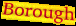
Borough